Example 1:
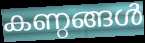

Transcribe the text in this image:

കണ്ഠങ്ങൾ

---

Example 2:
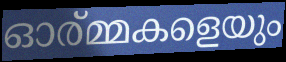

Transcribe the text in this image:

ഓര്മ്മകളെയും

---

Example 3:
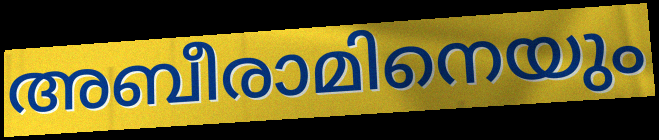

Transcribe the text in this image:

അബീരാമിനെയും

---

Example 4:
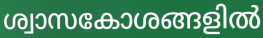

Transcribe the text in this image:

ശ്വാസകോശങ്ങളിൽ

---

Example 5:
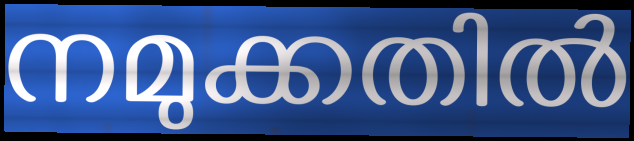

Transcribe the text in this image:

നമുക്കതിൽ